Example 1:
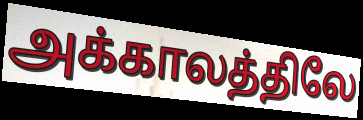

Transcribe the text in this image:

அக்காலத்திலே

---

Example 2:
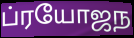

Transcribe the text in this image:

ப்ரயோஜந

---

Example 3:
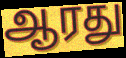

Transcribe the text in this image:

ஆரது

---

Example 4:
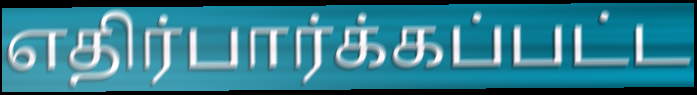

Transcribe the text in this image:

எதிர்பார்க்கப்பட்ட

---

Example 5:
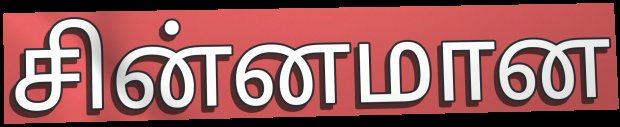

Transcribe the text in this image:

சின்னமான